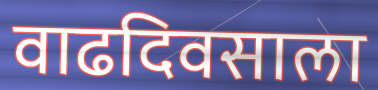
वाढदिवसाला